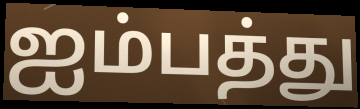
ஐம்பத்து